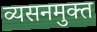
व्यसनमुक्त